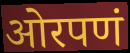
ओरपणं